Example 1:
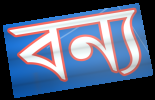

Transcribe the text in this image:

বন্য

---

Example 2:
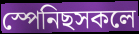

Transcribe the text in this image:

স্পেনিছসকলে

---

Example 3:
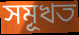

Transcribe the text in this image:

সমূখত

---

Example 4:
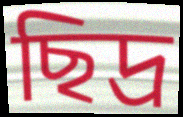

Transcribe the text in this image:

ছিদ্ৰ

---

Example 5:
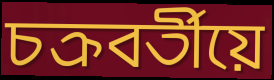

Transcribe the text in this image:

চক্ৰবৰ্তীয়ে